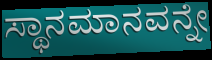
ಸ್ಥಾನಮಾನವನ್ನೇ